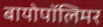
बायोपॉलिमर